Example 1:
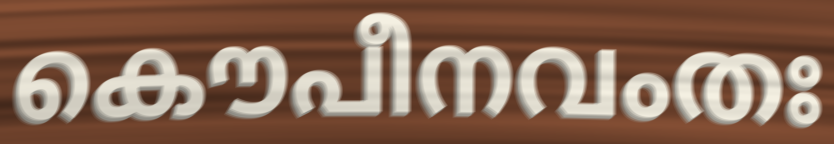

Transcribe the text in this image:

കൌപീനവംതഃ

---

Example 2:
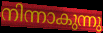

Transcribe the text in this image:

നിന്നാകുന്നു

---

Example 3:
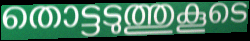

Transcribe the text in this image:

തൊട്ടടുത്തുകൂടെ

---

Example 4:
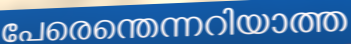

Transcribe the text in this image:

പേരെന്തെന്നറിയാത്ത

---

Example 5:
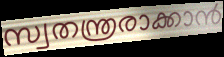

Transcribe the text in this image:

സ്വതന്ത്രരാക്കാൻ